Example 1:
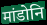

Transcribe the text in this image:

मांडोनि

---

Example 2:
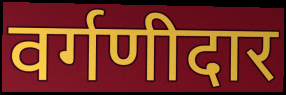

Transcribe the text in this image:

वर्गणीदार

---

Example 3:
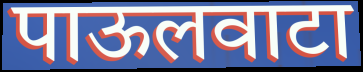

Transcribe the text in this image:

पाऊलवाटा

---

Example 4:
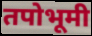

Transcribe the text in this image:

तपोभूमी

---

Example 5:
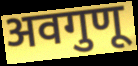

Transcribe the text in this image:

अवगुणू